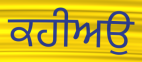
ਕਹੀਅਉ